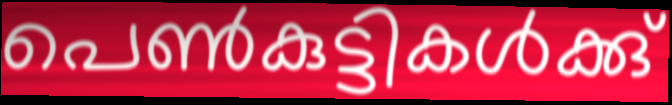
പെൺകുട്ടികൾക്കു്